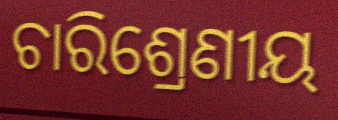
ଚାରିଶ୍ରେଣୀୟ